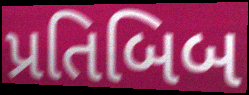
પ્રતિબિબ